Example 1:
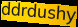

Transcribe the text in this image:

ddrdushy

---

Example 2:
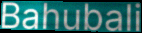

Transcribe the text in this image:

Bahubali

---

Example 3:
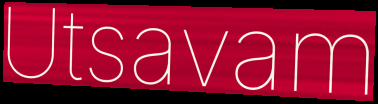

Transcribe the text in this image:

Utsavam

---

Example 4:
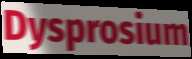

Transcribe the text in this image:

Dysprosium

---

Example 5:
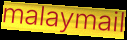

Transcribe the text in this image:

malaymail